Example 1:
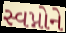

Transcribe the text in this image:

સ્વપ્નોને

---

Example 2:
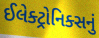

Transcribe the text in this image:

ઈલેક્ટ્રોનિક્સનું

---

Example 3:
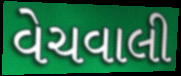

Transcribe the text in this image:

વેચવાલી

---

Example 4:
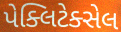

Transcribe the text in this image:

પેક્લિટેક્સેલ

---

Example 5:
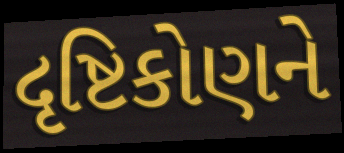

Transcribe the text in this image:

દૃષ્ટિકોણને